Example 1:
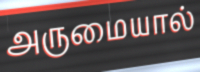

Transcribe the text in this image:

அருமையால்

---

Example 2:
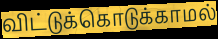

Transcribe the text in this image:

விட்டுக்கொடுக்காமல்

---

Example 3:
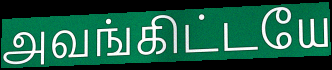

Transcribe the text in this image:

அவங்கிட்டயே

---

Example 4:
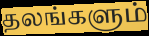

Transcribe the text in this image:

தலங்களும்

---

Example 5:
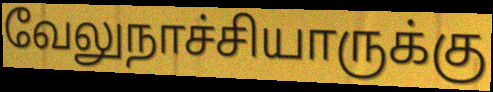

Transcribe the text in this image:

வேலுநாச்சியாருக்கு